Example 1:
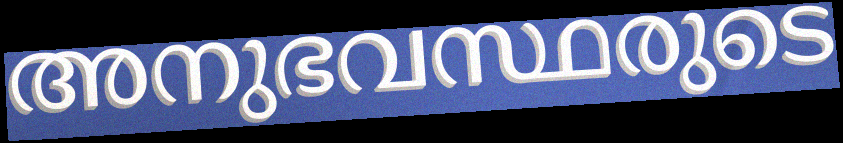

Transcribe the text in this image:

അനുഭവസ്ഥരുടെ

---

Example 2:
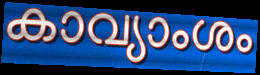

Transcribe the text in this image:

കാവ്യാംശം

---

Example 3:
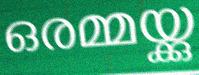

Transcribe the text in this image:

ഒരമ്മയ്ക്കു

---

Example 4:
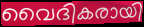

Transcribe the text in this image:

വൈദികരായി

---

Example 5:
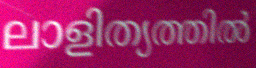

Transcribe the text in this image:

ലാളിത്യത്തിൽ